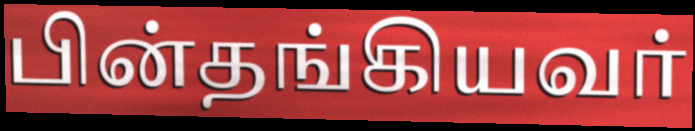
பின்தங்கியவர்